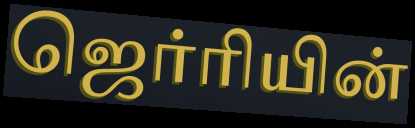
ஜெர்ரியின்